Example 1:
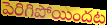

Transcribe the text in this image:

పెరిగిపోయిందట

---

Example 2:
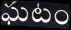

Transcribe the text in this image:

ఘటం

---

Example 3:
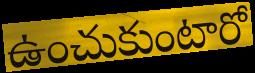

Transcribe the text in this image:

ఉంచుకుంటారో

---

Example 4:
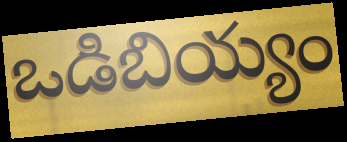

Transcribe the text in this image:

ఒడిబియ్యం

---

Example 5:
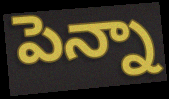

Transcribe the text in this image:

పెన్నా